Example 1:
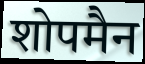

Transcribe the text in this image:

शोपमैन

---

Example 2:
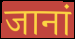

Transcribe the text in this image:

जानां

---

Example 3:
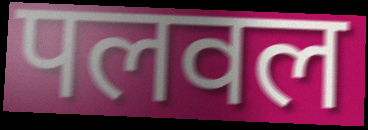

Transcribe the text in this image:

पलवल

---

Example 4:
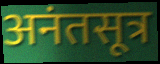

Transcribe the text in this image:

अनंतसूत्र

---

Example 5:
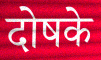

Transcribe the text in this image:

दोषके